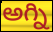
అగ్ని